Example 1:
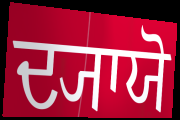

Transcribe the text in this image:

ਦ੍ਯਾਯੋ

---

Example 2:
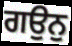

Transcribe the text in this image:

ਗਉਨੁ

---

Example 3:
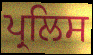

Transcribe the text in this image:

ਪ੍ਰਲਿਸ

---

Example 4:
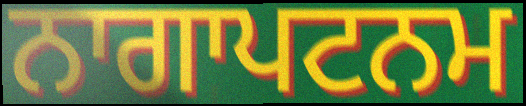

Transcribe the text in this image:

ਨਾਗਾਪਟਨਮ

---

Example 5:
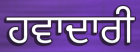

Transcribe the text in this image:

ਹਵਾਦਾਰੀ